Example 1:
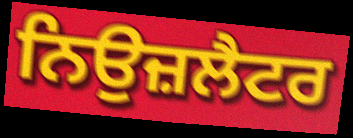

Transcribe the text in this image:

ਨਿਉਜ਼ਲੈਟਰ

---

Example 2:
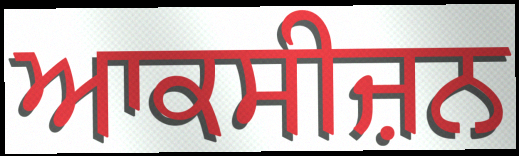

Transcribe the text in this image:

ਆਕਸੀਜ਼ਨ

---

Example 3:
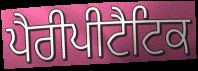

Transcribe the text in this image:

ਪੈਰੀਪੀਟੈਟਿਕ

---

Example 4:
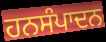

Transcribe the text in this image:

ਹਨਸੰਪਾਦਨ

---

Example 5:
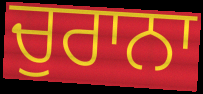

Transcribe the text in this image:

ਚੁਰਾਨਾ